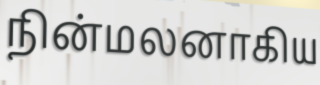
நின்மலனாகிய